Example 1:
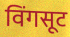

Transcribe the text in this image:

विंगसूट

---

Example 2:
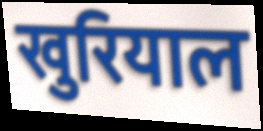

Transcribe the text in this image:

खुरियाल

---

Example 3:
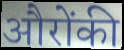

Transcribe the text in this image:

औरोंकी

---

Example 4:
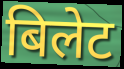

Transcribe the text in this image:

बिलेट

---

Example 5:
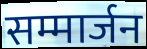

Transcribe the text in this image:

सम्मार्जन